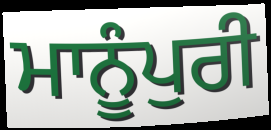
ਮਾਨੂੰਪੁਰੀ